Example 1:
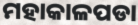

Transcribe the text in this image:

ମହାକାଳପଡା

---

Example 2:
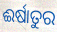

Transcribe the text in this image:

ଈର୍ଷାତୁର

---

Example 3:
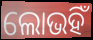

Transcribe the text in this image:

ଲୋଭହିଁ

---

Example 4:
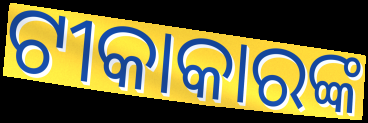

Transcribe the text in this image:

ଟୀକାକାରଙ୍କ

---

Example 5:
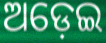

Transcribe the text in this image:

ଅଡ଼େଇ